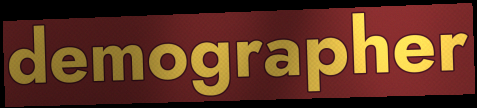
demographer